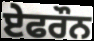
ਏਫਰੌਨ